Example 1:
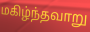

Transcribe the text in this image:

மகிழ்ந்தவாறு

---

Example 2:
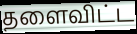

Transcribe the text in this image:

தளைவிட்ட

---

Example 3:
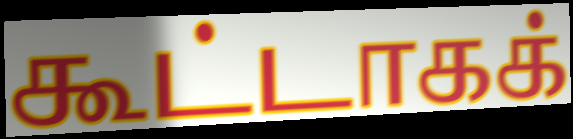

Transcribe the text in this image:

கூட்டாகக்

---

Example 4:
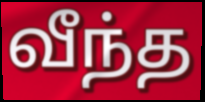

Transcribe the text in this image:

வீந்த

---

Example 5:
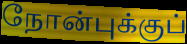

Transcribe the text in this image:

நோன்புக்குப்